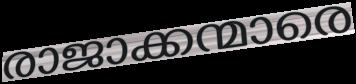
രാജാക്കന്മാരെ